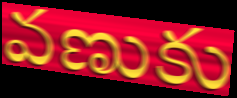
వణుకు